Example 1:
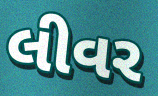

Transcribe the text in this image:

લીવર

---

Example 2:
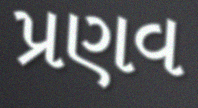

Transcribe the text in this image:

પ્રણવ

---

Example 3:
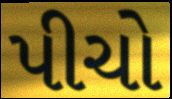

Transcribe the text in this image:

પીચો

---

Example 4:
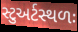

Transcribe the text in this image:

સ્ટુઅર્ટસ્થળઃ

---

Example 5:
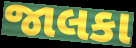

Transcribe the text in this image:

જાલકા